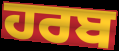
ਹਰਬ